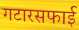
गटारसफाई